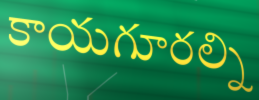
కాయగూరల్ని